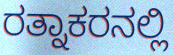
ರತ್ನಾಕರನಲ್ಲಿ